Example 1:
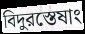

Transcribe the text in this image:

বিদুরস্তেষাং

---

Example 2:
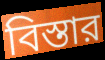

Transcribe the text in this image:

বিস্তার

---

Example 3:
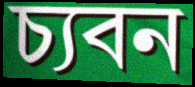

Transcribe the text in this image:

চ্যবন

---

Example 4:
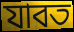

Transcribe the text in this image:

যাবত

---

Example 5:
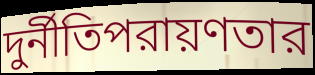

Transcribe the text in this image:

দুর্নীতিপরায়ণতার